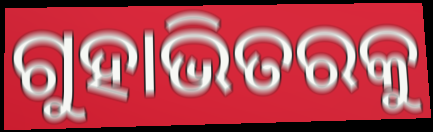
ଗୁହାଭିତରକୁ